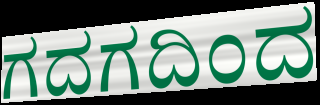
ಗದಗದಿಂದ